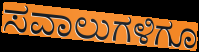
ಸವಾಲುಗಳಿಗೂ